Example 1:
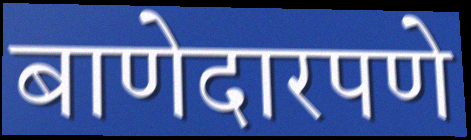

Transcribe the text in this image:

बाणेदारपणे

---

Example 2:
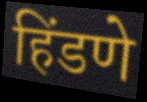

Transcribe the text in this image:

हिंडणे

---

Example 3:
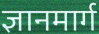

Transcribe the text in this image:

ज्ञानमार्ग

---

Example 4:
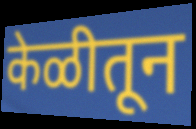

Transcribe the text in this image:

केळीतून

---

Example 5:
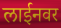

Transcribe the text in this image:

लाईनवर